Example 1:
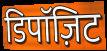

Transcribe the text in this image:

डिपॉज़िट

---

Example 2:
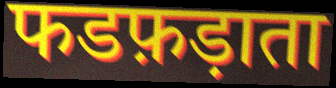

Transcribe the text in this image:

फडफ़ड़ाता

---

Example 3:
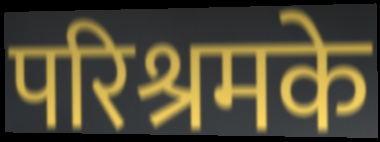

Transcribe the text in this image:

परिश्रमके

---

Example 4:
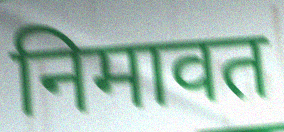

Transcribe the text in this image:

निमावत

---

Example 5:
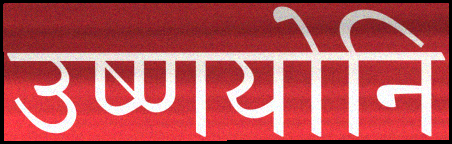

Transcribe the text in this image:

उष्णयोनि